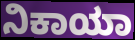
ನಿಕಾಯಾ